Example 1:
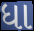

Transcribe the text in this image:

ધા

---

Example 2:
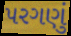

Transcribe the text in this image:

પરગણું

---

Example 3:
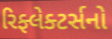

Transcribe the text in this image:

રિફ્લેક્ટર્સનો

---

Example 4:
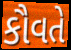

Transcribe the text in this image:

કૌવતે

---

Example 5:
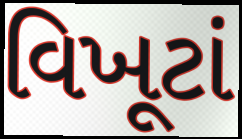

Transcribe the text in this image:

વિખૂટાં